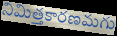
నిమిత్తకారణమగు